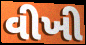
વીખી